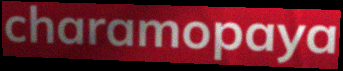
charamopaya